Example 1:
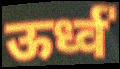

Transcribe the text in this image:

ऊर्ध्व॑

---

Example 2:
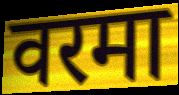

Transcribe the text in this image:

वरमा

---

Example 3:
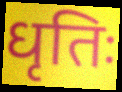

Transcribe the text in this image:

धृतिः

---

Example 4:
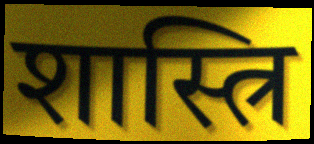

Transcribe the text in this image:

शास्त्रि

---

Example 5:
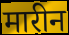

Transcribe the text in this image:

मारीन